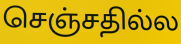
செஞ்சதில்ல